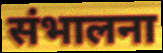
संभालना